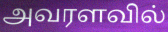
அவரளவில்